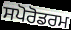
ਸਪੋਰੋਡਰਮ